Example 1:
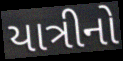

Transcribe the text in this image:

યાત્રીનો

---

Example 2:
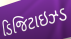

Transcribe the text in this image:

ડિજિટાઇઝ્ડ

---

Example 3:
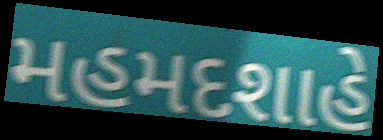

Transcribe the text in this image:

મહમદશાહે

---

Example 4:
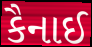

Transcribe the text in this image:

કૈનાઈ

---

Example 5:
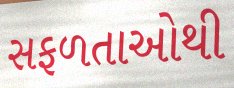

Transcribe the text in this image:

સફળતાઓથી